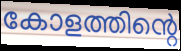
കോളത്തിന്റെ